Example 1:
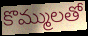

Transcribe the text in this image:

కొమ్ములతో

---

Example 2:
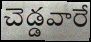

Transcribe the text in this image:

చెడ్డవారే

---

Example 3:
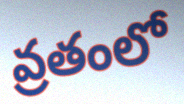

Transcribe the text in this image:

వ్రతంలో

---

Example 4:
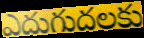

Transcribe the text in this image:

ఎదుగుదలకు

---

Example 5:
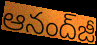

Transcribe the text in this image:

ఆనంద్‌జీ